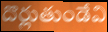
దొర్లుతుండేవి